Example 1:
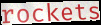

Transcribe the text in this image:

rockets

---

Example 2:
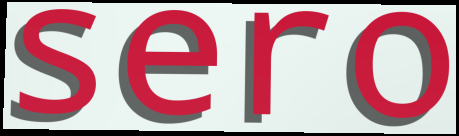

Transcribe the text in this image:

sero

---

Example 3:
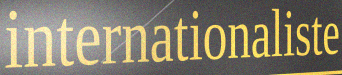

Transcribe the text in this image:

internationaliste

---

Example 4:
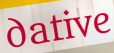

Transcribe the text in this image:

dative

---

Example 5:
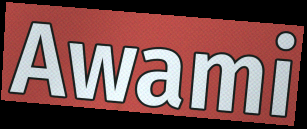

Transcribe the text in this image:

Awami